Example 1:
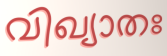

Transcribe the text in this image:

വിഖ്യാതഃ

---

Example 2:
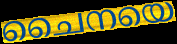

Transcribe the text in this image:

ചൈനയെ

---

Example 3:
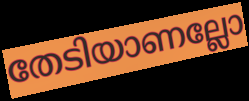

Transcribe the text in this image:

തേടിയാണല്ലോ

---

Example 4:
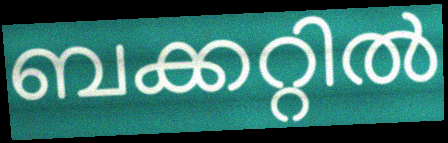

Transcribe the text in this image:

ബക്കറ്റിൽ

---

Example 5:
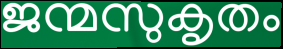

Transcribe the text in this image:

ജന്മസുകൃതം